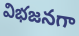
విభజనగా